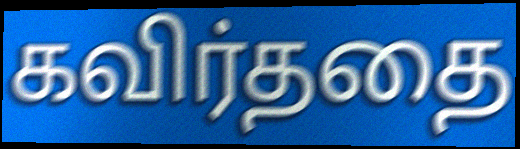
கவிர்ததை